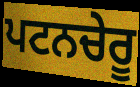
ਪਟਨਚੇਰੂ